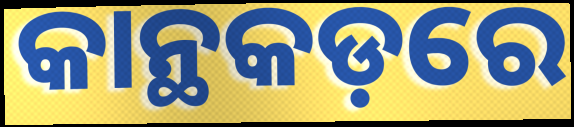
କାନ୍ଥକଡ଼ରେ